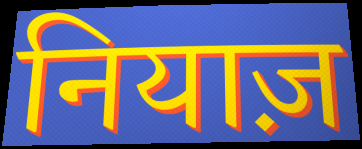
नियाज़